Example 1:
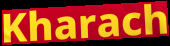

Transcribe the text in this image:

Kharach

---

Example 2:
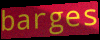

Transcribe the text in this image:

barges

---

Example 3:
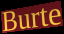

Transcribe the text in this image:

Burte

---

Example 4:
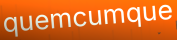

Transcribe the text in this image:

quemcumque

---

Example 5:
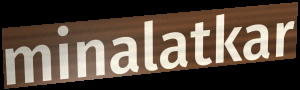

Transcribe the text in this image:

minalatkar